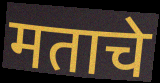
मताचे